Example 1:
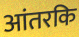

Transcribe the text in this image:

आंतरकि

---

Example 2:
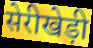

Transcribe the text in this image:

सेरीखेड़ी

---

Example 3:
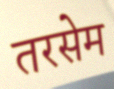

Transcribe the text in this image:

तरसेम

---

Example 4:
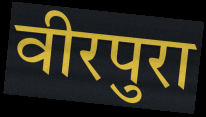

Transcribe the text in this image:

वीरपुरा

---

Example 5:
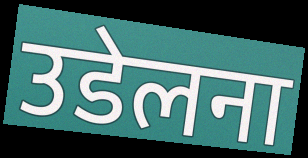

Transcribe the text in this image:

उडेलना